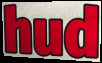
hud